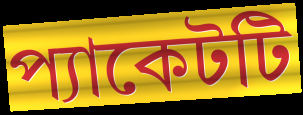
প্যাকেটটি